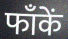
फाँकें